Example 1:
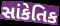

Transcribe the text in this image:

સાંકેતિક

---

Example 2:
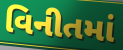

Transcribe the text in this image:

વિનીતમાં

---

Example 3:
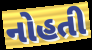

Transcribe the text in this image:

નોહતી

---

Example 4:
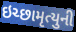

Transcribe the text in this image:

ઇચ્છામૃત્યુની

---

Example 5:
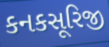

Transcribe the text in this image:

કનકસૂરિજી